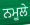
ਨਮੂਲੇ